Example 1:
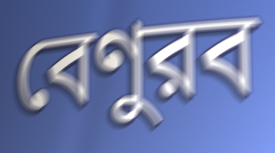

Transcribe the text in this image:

বেণুরব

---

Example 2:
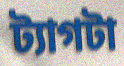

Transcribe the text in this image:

ট্যাগটা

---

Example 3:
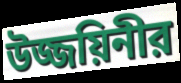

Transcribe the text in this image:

উজ্জয়িনীর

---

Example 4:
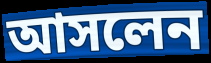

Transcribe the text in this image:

আসলেন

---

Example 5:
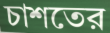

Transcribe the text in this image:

চাশতের